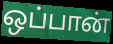
ஒப்பான்